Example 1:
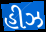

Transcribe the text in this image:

હીઝ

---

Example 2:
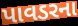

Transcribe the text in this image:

પાવડરના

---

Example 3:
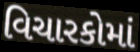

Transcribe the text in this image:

વિચારકોમાં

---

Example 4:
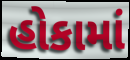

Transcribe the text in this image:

હોકામાં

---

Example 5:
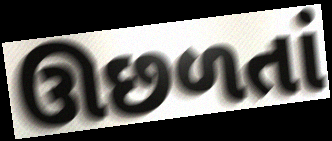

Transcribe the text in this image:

ઊછળતાં